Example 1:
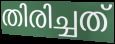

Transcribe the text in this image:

തിരിച്ചത്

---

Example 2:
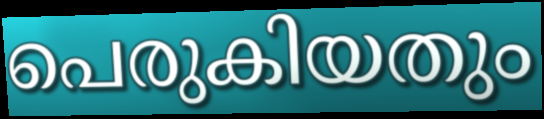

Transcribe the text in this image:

പെരുകിയതും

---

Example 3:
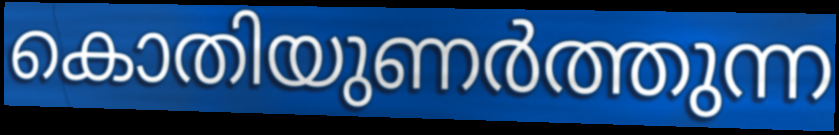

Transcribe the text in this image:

കൊതിയുണർത്തുന്ന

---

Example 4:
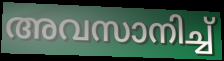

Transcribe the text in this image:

അവസാനിച്ച്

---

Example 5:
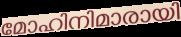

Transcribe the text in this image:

മോഹിനിമാരായി